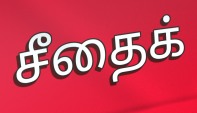
சீதைக்